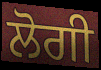
ਲੋਗੀ